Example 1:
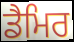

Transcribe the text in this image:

ਡੈਮਿਰ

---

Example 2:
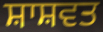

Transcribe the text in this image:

ਸ਼ਾਸ਼ਵਤ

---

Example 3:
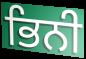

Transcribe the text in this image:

ਭਿਨੀ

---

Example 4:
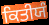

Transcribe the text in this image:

ਕਿਤੀਯੰ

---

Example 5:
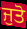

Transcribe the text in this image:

ਜੁਤੋ